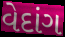
વેદાંગ